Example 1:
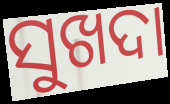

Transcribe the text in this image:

ସୁଖଦା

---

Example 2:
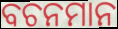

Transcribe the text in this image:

ବଚନମାନ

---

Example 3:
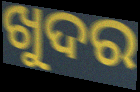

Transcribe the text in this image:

ଖୁଦର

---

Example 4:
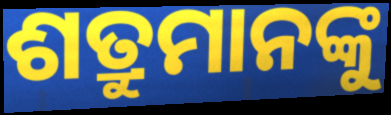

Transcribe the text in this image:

ଶତ୍ରୁମାନଙ୍କୁ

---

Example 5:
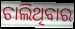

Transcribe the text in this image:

ଚାଲିଥିବାର